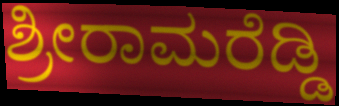
ಶ್ರೀರಾಮರೆಡ್ಡಿ